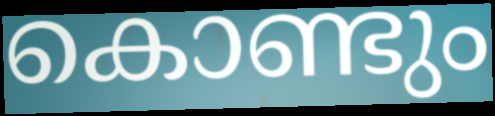
കൊണ്ടും